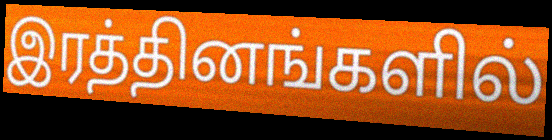
இரத்தினங்களில்